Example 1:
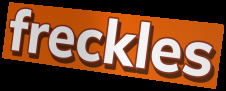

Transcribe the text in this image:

freckles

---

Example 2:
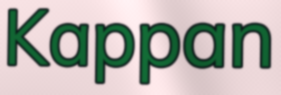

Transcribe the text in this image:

Kappan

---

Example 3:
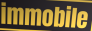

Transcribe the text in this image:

immobile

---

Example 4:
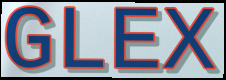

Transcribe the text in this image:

GLEX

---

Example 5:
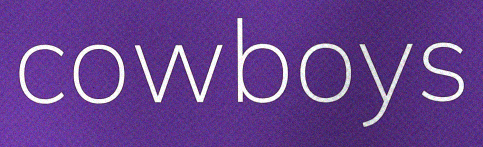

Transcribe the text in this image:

cowboys